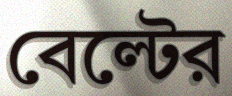
বেল্টের